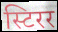
स्टिरर